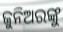
ଜୁନିଅରଙ୍କୁ